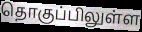
தொகுப்பிலுள்ள